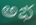
అభ